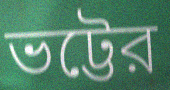
ভট্টের